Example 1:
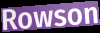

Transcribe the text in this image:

Rowson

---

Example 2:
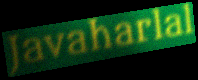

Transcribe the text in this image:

Javaharlal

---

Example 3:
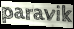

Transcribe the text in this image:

paravik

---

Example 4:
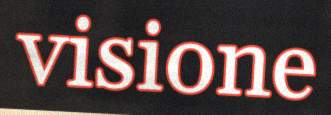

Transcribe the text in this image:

visione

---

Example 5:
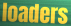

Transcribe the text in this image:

loaders